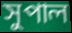
সুপাল